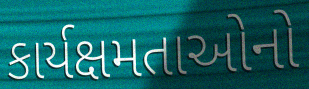
કાર્યક્ષમતાઓનો